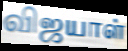
விஜயாள்